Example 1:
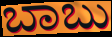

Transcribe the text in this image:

ಬಾಬು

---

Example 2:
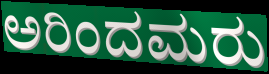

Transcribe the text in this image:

ಅರಿಂದಮರು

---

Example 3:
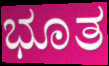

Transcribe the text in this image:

ಭೂತ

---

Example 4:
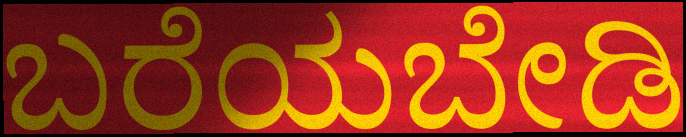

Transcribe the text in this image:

ಬರೆಯಬೇಡಿ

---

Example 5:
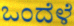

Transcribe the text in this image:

ಒಂದೆಳೆ